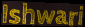
Ishwari